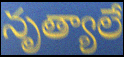
నృత్యాలే